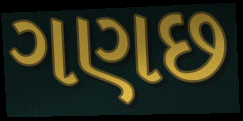
ગણછ